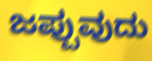
ಜಪ್ಪುವುದು